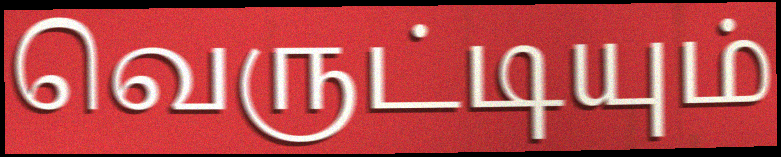
வெருட்டியும்